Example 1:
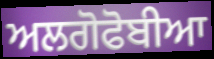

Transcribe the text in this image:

ਅਲਗੋਫੋਬੀਆ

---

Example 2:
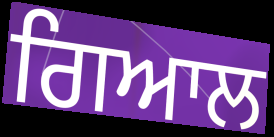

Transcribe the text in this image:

ਗਿਆਲ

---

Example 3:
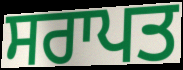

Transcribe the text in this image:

ਸਰਾਪਤ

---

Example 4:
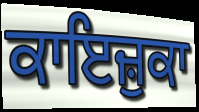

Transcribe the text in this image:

ਕਾਇਜ਼ੁਕਾ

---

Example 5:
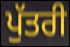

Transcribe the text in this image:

ਪੁੱਤਰੀ